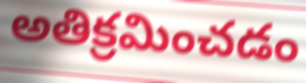
అతిక్రమించడం